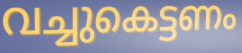
വച്ചുകെട്ടണം